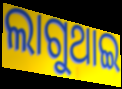
ଲାଗୁଥାଇ